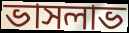
ভাসলাভ